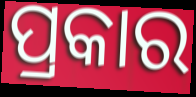
ପ୍ରକାର